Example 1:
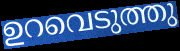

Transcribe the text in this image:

ഉറവെടുത്തു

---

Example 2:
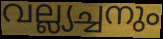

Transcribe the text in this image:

വല്ല്യച്ചനും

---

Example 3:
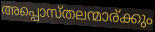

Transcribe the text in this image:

അപ്പൊസ്തലന്മാര്ക്കും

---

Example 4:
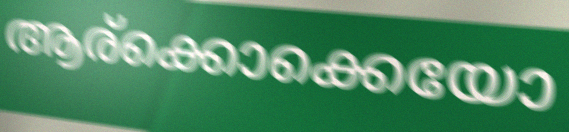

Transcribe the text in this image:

ആര്ക്കൊക്കെയോ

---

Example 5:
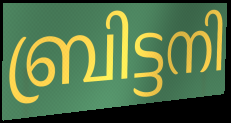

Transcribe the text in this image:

ബ്രിട്ടനി